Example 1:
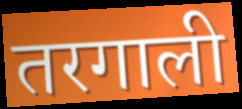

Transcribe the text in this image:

तरगाली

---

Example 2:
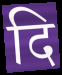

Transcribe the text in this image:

दि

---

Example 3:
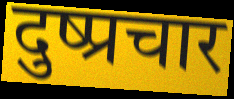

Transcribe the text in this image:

दुष्‍प्रचार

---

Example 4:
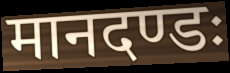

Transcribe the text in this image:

मानदण्डः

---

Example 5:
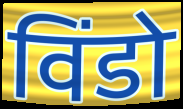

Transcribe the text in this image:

विंडो